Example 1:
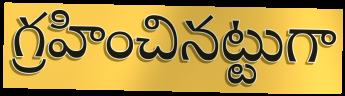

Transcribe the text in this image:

గ్రహించినట్టుగా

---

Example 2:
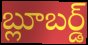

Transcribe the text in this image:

బ్లూబర్డ్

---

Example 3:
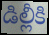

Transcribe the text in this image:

డిల్లీకి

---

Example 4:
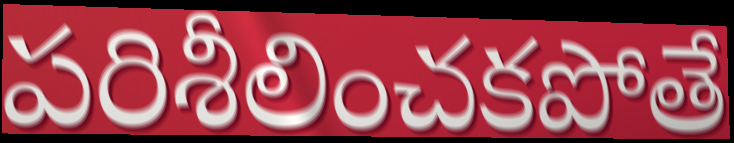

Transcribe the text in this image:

పరిశీలించకపోతే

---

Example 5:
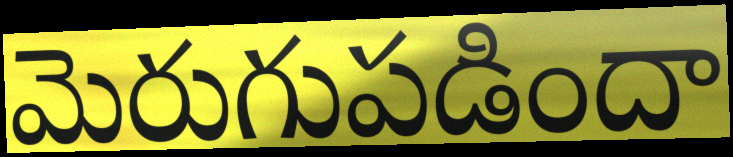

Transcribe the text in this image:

మెరుగుపడిందా